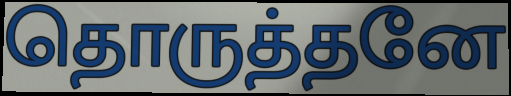
தொருத்தனே